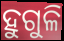
ହୁଗୁଳି